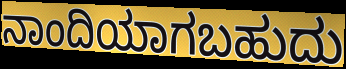
ನಾಂದಿಯಾಗಬಹುದು